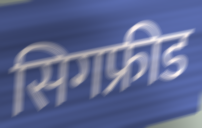
सिगफ्रीड